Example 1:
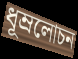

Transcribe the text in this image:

ধূম্রলোচন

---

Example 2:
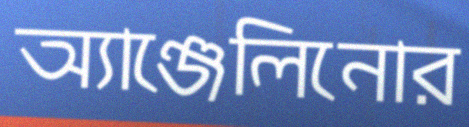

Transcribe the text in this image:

অ্যাঞ্জেলিনোর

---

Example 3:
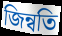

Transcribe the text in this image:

জিন্বতি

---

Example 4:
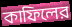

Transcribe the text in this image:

কাফিলের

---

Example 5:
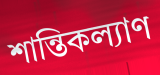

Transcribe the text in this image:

শান্তিকল্যাণ